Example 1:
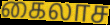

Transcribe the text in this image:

கைலாச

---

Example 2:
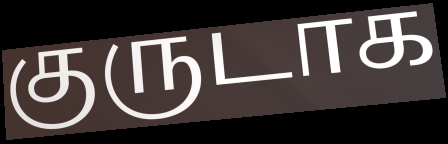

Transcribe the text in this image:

குருடாக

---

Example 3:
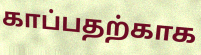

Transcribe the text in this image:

காப்பதற்காக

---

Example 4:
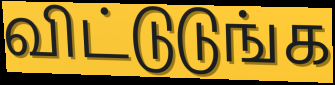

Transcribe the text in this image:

விட்டுடுங்க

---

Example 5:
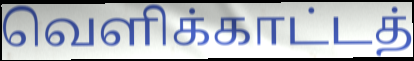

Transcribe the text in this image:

வெளிக்காட்டத்